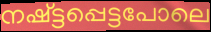
നഷ്ട്ടപ്പെട്ടപോലെ